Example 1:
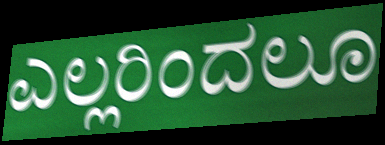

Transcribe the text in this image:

ಎಲ್ಲರಿಂದಲೂ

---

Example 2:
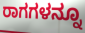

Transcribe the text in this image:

ರಾಗಗಳನ್ನೂ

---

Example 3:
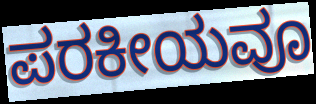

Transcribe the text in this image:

ಪರಕೀಯವೂ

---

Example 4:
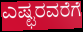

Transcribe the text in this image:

ಎಷ್ಟರವರೆಗೆ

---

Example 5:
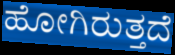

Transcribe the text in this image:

ಹೋಗಿರುತ್ತದೆ